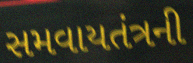
સમવાયતંત્રની